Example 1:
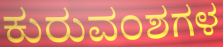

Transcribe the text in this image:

ಕುರುವಂಶಗಳ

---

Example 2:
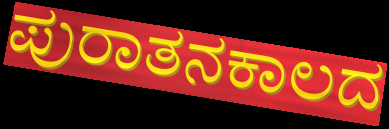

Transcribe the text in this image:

ಪುರಾತನಕಾಲದ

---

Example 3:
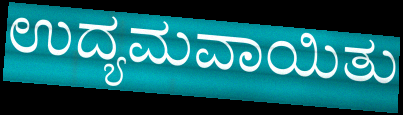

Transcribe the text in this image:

ಉದ್ಯಮವಾಯಿತು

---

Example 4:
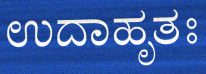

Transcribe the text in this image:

ಉದಾಹೃತಃ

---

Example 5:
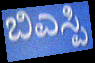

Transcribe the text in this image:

ಬಿಎಸ್ಪಿ